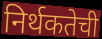
निर्थकतेची